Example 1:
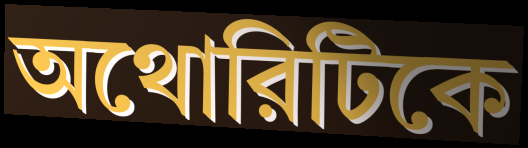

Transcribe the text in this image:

অথোরিটিকে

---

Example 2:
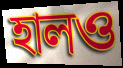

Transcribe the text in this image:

হালও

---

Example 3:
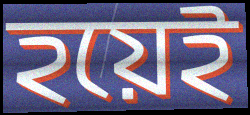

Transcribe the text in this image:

হয়েই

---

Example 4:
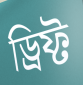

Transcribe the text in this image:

ড্রিফ্ট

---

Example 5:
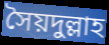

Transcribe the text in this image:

সৈয়দুল্লাহ